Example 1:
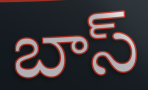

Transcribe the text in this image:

బాస్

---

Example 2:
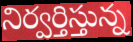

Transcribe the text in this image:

నిర్వర్తిస్తున్న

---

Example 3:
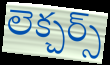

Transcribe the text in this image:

లెక్చర్స్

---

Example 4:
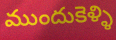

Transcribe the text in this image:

ముందుకెళ్ళి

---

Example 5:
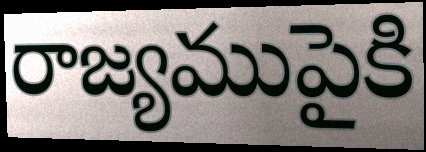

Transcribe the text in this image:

రాజ్యముపైకి